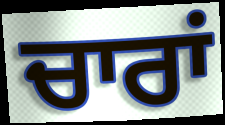
ਚਾਰਾਂ